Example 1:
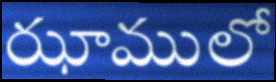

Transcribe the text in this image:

ఝాములో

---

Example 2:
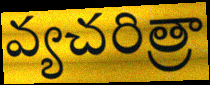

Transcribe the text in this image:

వ్యచరిత్రా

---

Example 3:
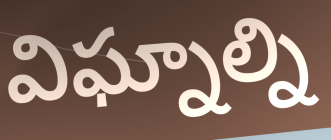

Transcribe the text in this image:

విఘ్నాల్ని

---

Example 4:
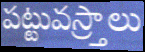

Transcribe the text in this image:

పట్టువస్ర్తాలు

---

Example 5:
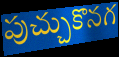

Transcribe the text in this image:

పుచ్చుకొనగ